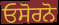
ਓਸੋਰਨੋ